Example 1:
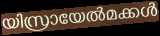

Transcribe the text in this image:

യിസ്രായേൽമക്കൾ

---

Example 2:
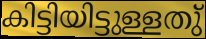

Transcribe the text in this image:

കിട്ടിയിട്ടുള്ളതു്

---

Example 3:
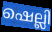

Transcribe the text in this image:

ഷെല്ലി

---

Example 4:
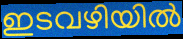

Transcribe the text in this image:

ഇടവഴിയിൽ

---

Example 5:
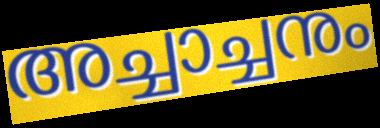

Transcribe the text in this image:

അച്ചാച്ചനും